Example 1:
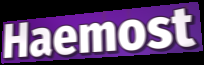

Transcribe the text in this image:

Haemost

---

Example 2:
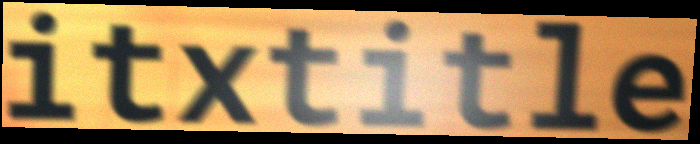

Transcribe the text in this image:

itxtitle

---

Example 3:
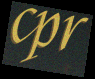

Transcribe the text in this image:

cpr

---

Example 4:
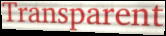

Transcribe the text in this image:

Transparent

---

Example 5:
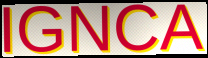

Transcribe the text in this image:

IGNCA